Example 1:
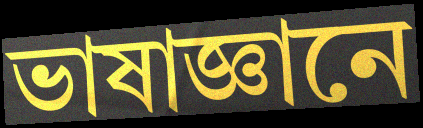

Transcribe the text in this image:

ভাষাজ্ঞানে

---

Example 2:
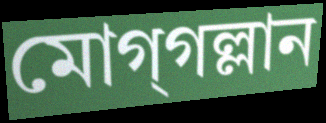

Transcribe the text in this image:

মোগ্‌গল্লান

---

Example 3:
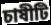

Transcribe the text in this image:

চাষীটি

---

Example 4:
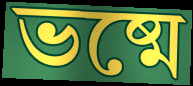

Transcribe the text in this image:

ভষ্মে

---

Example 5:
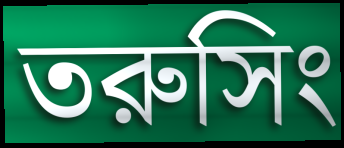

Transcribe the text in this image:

তরুসিং